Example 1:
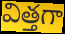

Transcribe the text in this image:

విత్తగా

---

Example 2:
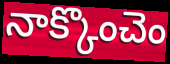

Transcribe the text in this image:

నాక్కొంచెం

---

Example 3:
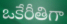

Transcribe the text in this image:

ఒకేరీతిగా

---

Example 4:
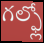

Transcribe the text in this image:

గల్ఫ్లో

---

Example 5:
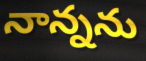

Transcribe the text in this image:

నాన్నను